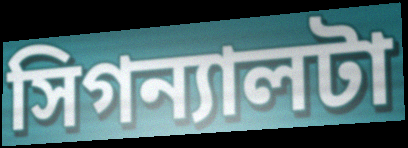
সিগন্যালটা